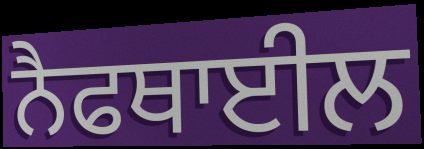
ਨੈਫਥਾਈਲ